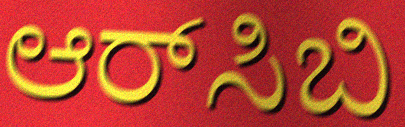
ಆರ್‌ಸಿಬಿ